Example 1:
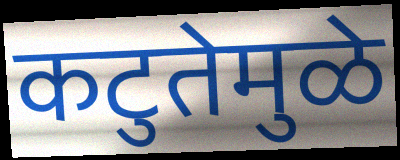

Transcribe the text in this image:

कटुतेमुळे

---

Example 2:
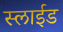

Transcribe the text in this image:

स्लाईड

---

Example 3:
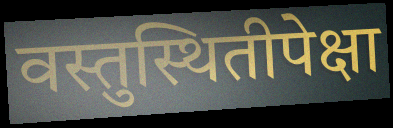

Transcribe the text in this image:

वस्तुस्थितीपेक्षा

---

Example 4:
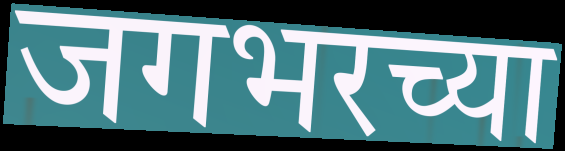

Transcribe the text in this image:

जगभरच्या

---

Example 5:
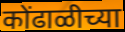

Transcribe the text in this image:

कोंढाळीच्या